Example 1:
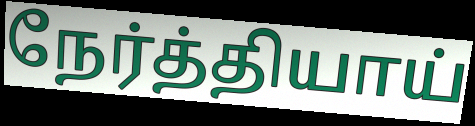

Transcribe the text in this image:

நேர்த்தியாய்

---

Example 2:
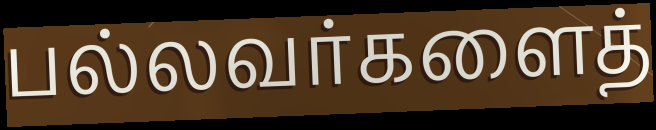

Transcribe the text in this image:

பல்லவர்களைத்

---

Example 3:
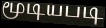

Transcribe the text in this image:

மூடியபடி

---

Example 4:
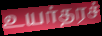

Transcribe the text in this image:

உயர்தரச்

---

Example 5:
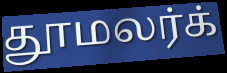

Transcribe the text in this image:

தூமலர்க்